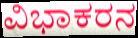
ವಿಭಾಕರನ